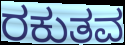
ರಕುತವ